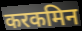
करकमिन